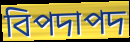
বিপদাপদ